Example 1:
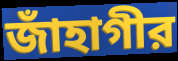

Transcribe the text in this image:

জাঁহাগীর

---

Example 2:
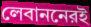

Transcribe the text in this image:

লেবাননেরই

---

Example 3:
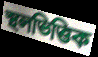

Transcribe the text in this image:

স্থলভিত্তিক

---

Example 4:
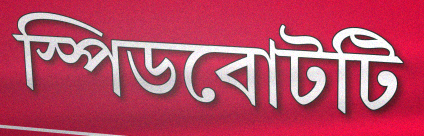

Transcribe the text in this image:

স্পিডবোটটি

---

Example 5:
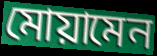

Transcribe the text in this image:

মোয়ামেন